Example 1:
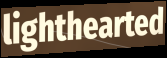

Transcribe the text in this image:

lighthearted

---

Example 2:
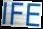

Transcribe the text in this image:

IFE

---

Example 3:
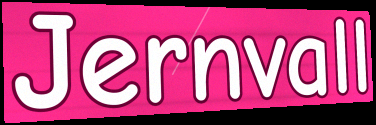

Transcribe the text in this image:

Jernvall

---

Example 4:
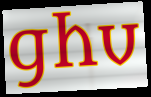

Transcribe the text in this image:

ghu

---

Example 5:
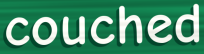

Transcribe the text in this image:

couched